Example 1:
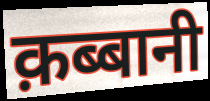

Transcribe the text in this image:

क़ब्बानी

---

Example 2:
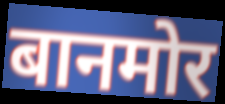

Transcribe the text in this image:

बानमोर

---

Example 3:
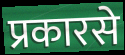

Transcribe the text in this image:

प्रकारसे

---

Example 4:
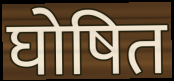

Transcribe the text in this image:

घोषित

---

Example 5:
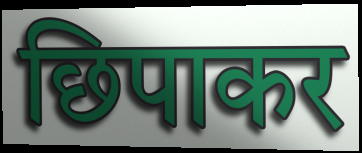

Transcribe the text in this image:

छिपाकर